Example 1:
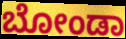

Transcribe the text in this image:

ಬೋಂಡಾ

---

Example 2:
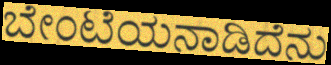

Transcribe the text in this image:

ಬೇಂಟೆಯನಾಡಿದೆನು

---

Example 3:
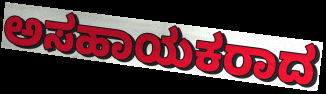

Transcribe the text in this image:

ಅಸಹಾಯಕರಾದ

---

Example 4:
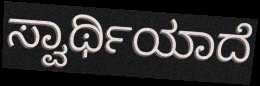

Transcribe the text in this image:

ಸ್ವಾರ್ಥಿಯಾದೆ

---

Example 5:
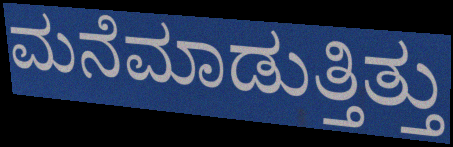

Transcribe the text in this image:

ಮನೆಮಾಡುತ್ತಿತ್ತು